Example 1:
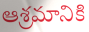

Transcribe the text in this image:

ఆశ్రమానికి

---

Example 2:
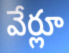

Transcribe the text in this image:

వేర్లూ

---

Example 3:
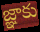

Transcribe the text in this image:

జ్ఞాకు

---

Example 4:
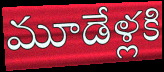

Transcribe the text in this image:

మూడేళ్లకి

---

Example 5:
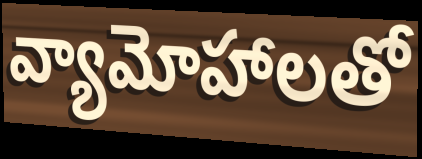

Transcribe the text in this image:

వ్యామోహాలతో